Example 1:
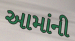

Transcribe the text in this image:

આમાંની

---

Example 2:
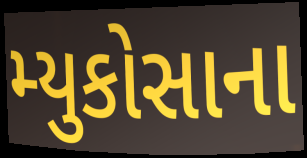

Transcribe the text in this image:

મ્યુકોસાના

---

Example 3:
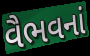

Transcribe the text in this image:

વૈભવનાં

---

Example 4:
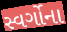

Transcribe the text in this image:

સ્વર્ગોના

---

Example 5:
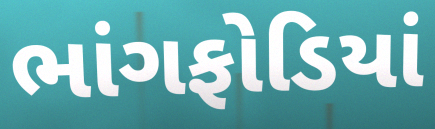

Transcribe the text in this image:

ભાંગફોડિયાં